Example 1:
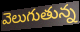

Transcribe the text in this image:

వెలుగుతున్న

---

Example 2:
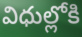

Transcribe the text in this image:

విధుల్లోకి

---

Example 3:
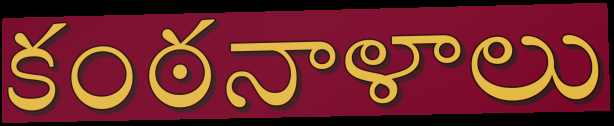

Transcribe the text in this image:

కంఠనాళాలు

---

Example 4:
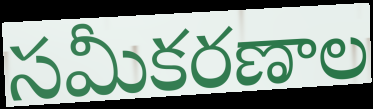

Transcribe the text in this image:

సమీకరణాల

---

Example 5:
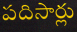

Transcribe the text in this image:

పదిసార్లు